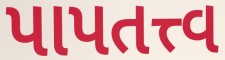
પાપતત્ત્વ